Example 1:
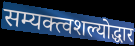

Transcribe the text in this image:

सम्यक्त्वशल्योद्धार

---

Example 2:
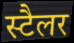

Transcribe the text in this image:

स्टैलर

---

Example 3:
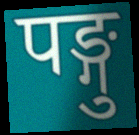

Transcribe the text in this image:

पङ्गु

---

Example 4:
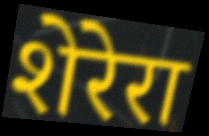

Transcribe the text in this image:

शेरेरा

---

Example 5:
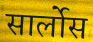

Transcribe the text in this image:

सार्लोस